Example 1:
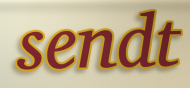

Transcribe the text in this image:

sendt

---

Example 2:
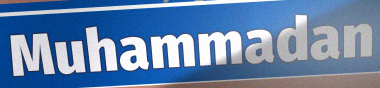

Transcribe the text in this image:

Muhammadan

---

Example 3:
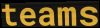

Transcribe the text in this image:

teams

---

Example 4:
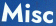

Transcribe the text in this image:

Misc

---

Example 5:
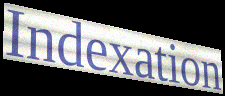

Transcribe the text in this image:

Indexation